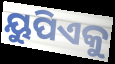
ୟୁପିଏକୁ